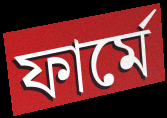
ফার্মে